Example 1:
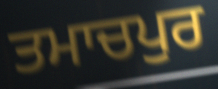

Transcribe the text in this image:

ਤਮਾਚਪੁਰ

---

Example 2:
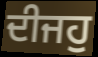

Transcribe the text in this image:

ਦੀਜਹੁ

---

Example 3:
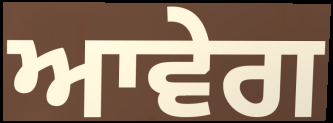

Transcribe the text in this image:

ਆਵੇਗ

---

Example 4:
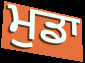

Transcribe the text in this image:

ਮੁਡਾ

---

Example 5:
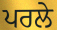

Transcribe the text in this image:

ਪਰਲੇ